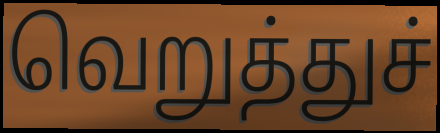
வெறுத்துச்